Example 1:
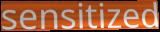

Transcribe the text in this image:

sensitized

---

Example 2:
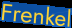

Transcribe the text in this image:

Frenkel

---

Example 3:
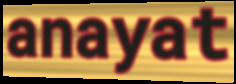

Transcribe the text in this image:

anayat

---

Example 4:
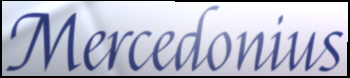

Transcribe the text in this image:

Mercedonius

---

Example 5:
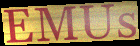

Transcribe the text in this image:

EMUs